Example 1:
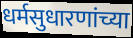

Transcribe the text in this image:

धर्मसुधारणांच्या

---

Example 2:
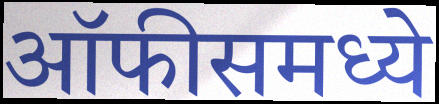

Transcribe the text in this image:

ऑफीसमध्ये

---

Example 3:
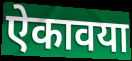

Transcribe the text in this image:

ऐकावया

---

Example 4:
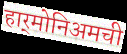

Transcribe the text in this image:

हार्मोनिअमची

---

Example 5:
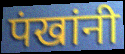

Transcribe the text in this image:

पंखांनी